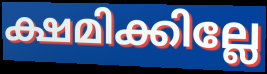
ക്ഷമിക്കില്ലേ